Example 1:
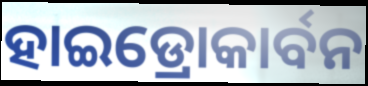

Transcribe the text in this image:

ହାଇଡ୍ରୋକାର୍ବନ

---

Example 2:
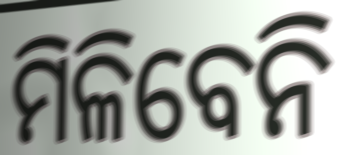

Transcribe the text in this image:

ମିଳିବେନି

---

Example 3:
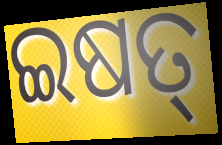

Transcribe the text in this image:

ଇଷତ୍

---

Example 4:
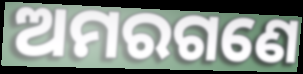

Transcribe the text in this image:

ଅମରଗଣେ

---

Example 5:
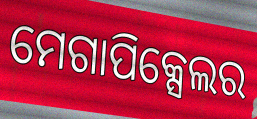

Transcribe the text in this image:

ମେଗାପିକ୍ସେଲର